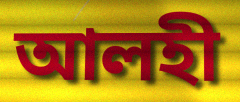
আলহী